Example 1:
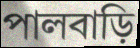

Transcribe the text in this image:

পালবাড়ি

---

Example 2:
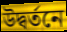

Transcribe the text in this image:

উদ্বর্তনে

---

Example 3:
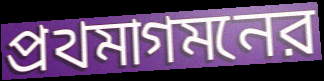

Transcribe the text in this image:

প্রথমাগমনের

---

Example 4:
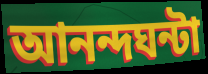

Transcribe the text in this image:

আনন্দঘন্টা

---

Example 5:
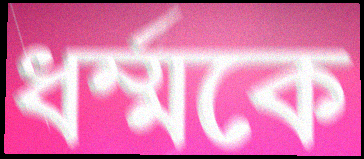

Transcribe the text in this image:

ধর্ম্মকে